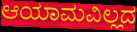
ಆಯಾಮವಿಲ್ಲದ